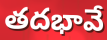
తదభావే